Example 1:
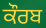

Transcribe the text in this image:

ਕੌਰਬ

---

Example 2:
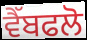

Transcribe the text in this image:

ਵੈੱਬਫਲੋ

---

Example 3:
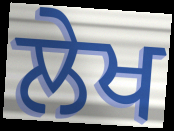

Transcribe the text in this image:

ਲੇਖ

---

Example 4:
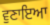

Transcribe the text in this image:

ਵੁਣਾਇਆ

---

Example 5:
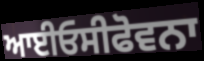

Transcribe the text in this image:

ਆਈਓਸੀਫੋਵਨਾ